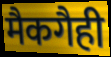
मैकगैही